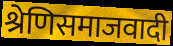
श्रेणिसमाजवादी